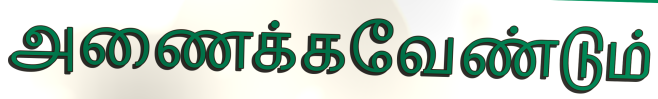
அணைக்கவேண்டும்